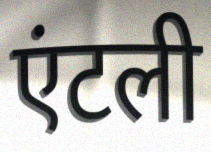
एंटली